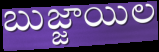
బుజ్జాయిల